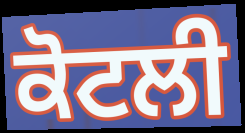
ਕੋਟਲੀ